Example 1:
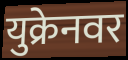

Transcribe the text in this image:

युक्रेनवर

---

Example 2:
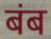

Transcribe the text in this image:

बंब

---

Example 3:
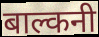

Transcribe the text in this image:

बाल्कनी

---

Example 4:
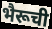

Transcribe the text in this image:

भैरूची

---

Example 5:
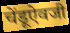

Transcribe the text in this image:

चेंडूऐवजी